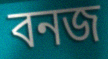
বনজ